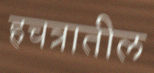
हचत्रातील